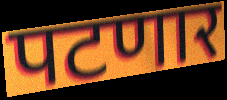
पटणार